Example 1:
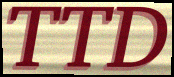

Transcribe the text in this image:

TTD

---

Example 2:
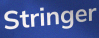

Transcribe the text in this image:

Stringer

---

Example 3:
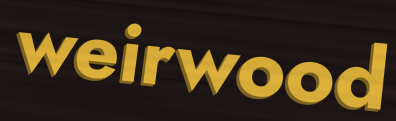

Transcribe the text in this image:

weirwood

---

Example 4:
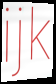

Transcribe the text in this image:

ijk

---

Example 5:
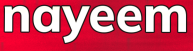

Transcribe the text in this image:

nayeem